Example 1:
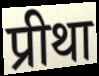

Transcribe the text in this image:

प्रीथा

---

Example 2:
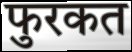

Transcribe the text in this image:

फुरकत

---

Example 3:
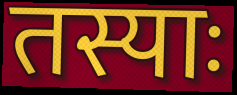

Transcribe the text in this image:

तस्याः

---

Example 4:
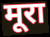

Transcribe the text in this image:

मूरा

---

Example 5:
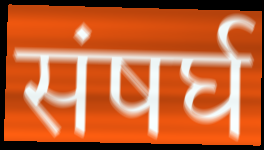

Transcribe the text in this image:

संषर्घ